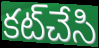
కట్‌చేసి